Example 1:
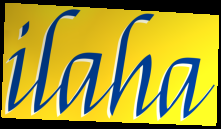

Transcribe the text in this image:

ilaha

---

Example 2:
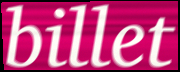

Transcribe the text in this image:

billet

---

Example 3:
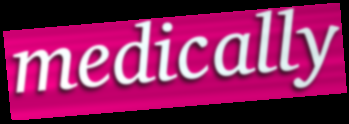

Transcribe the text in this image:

medically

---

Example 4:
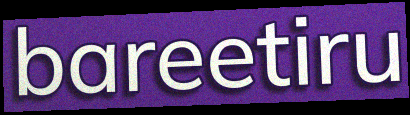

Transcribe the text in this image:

bareetiru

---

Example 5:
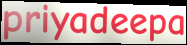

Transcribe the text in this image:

priyadeepa